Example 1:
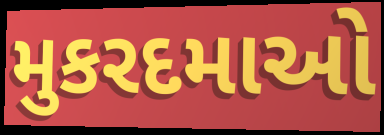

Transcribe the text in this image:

મુકરદમાઓ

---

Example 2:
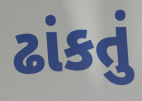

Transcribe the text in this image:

ઢાંકતું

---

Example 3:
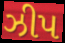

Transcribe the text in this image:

ઝીપ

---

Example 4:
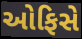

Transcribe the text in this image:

ઓફિસે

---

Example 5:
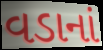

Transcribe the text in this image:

વડાનાં